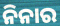
ନିନାର